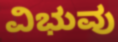
ವಿಭುವು